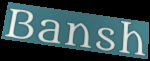
Bansh